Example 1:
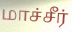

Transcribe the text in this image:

மாச்சீர்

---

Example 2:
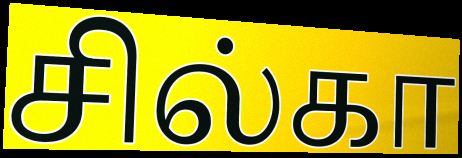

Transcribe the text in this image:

சில்கா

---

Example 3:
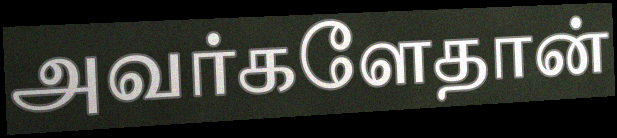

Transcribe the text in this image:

அவர்களேதான்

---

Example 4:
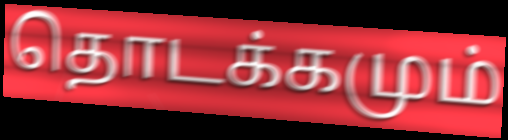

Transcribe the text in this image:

தொடக்கமும்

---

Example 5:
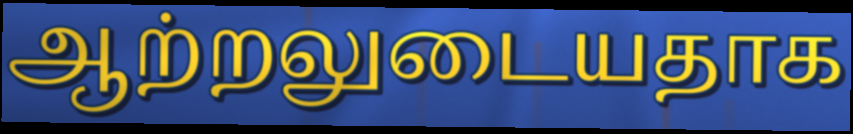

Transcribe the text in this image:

ஆற்றலுடையதாக